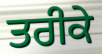
ਤਰੀਕੇ